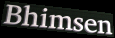
Bhimsen